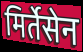
मिर्तेसेन